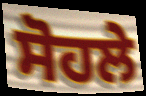
ਸੋਹਲੇ